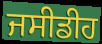
ਜਸੀਡੀਹ